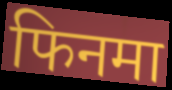
फिनमा